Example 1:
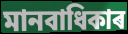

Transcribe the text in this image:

মানবাধিকাৰ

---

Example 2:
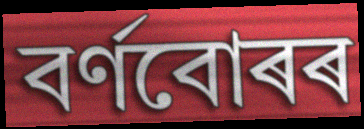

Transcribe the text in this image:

বৰ্ণবোৰৰ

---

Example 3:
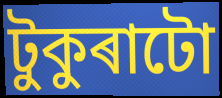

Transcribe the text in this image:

টুকুৰাটো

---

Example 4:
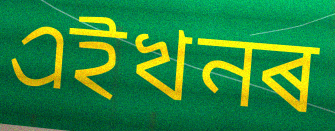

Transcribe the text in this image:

এইখনৰ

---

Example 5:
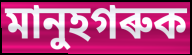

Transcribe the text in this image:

মানুহগৰুক